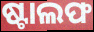
ଷ୍ଟାଲଫ